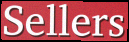
Sellers